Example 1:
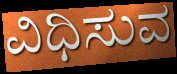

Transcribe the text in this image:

ವಿಧಿಸುವ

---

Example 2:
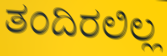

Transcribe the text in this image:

ತಂದಿರಲಿಲ್ಲ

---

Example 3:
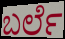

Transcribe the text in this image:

ಬರ್ಲೆ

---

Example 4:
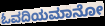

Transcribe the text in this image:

ಓವದಿಯಮಾನೋ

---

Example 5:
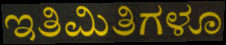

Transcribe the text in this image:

ಇತಿಮಿತಿಗಳೂ